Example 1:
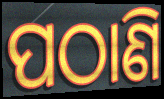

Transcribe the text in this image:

ପଠାଣି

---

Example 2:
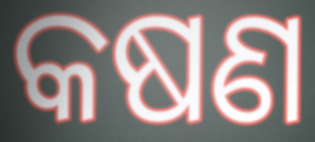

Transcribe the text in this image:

କଷଣ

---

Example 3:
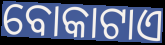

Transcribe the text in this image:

ବୋକାଟାଏ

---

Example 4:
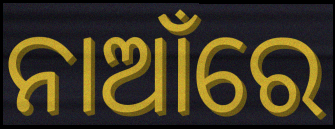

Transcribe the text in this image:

ନାଆଁରେ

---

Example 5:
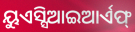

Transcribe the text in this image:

ୟୁଏସ୍ସିଆଇଆର୍ଏଫ୍